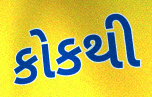
કોકથી